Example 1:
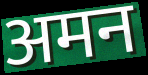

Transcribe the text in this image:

अमन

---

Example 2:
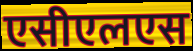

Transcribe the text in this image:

एसीएलएस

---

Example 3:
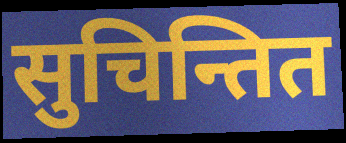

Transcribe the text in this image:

सुचिन्तित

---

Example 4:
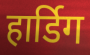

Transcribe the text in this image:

हार्डिग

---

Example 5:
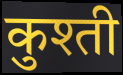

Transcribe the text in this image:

कुश्‍ती